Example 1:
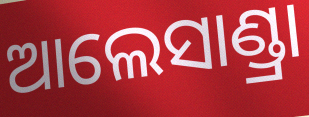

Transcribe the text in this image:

ଆଲେସାଣ୍ଡ୍ରା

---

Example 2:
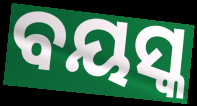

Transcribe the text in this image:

ବୟସ୍କ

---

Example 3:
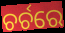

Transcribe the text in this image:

ଚର୍ଚରେ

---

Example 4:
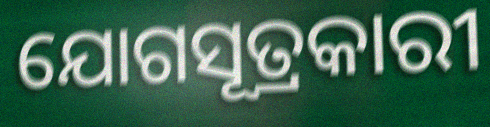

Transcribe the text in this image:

ଯୋଗସୂତ୍ରକାରୀ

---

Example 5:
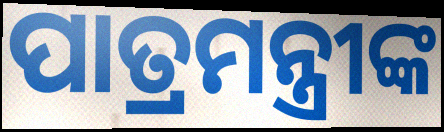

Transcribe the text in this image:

ପାତ୍ରମନ୍ତ୍ରୀଙ୍କ